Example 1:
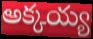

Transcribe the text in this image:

అక్కయ్య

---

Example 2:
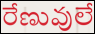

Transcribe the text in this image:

రేణువులే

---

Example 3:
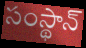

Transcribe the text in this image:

సంస్థాన్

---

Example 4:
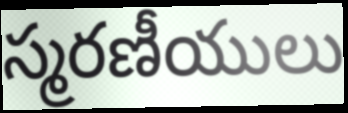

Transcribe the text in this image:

స్మరణీయులు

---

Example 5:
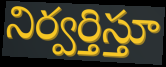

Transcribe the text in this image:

నిర్వర్తిస్తూ